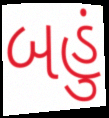
બહું